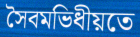
সৈবমভিধীয়তে